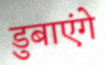
डुबाएंगे